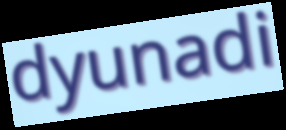
dyunadi